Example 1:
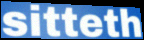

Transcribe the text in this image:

sitteth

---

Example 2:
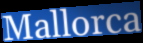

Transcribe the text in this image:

Mallorca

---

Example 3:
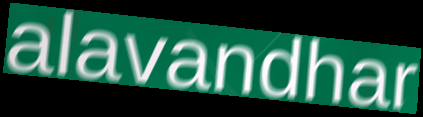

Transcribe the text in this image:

alavandhar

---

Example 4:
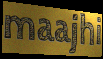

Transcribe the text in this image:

maajhi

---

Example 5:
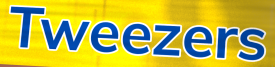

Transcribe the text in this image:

Tweezers